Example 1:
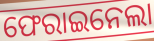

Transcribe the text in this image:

ଫେରାଇନେଲା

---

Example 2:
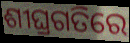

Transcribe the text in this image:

ଶୀଘ୍ରଗତିରେ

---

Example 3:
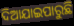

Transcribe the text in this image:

ଦିଆଯାଇପାରୁଛି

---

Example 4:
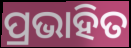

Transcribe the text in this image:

ପ୍ରଭାହିତ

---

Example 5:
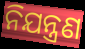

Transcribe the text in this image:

ନିଯନ୍ତ୍ରଣ